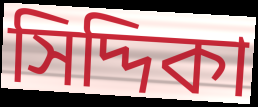
সিদ্দিকা